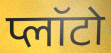
प्लॉटो